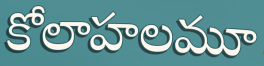
కోలాహలమూ